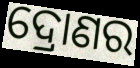
ଦ୍ରୋଣର